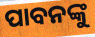
ପାବନଙ୍କୁ